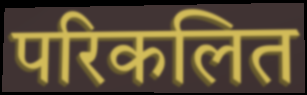
परिकलित